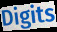
Digits